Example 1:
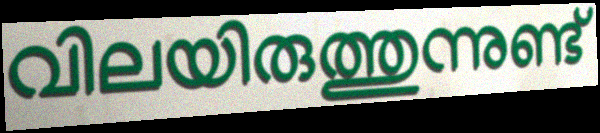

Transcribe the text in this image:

വിലയിരുത്തുന്നുണ്ട്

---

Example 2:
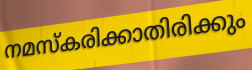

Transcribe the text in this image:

നമസ്കരിക്കാതിരിക്കും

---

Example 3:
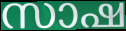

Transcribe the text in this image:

സാഷ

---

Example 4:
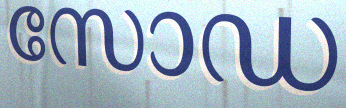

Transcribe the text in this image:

സോഡ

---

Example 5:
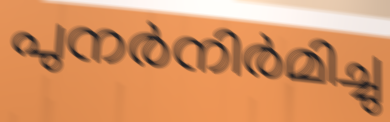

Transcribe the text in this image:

പുനർനിർമിച്ചു